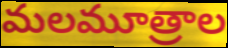
మలమూత్రాల